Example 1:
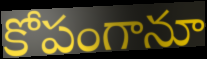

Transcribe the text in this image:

కోపంగానూ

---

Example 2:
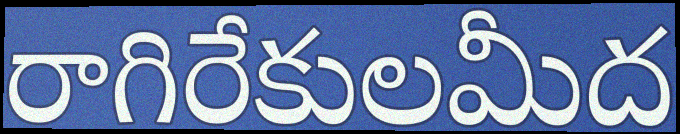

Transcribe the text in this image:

రాగిరేకులమీద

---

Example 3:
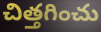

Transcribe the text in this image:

చిత్తగించు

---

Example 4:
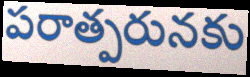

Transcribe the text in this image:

పరాత్పరునకు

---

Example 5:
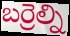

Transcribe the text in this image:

బర్రెల్ని